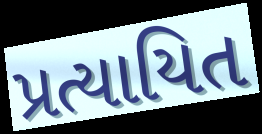
પ્રત્યાયિત